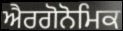
ਐਰਗੋਨੋਮਿਕ